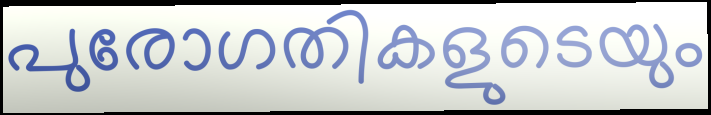
പുരോഗതികളുടെയും